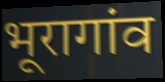
भूरागांव